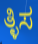
ತ್ಳಿಸ